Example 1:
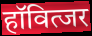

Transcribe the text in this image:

हॉवित्जर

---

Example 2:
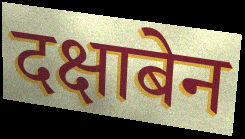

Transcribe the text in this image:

दक्षाबेन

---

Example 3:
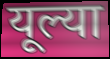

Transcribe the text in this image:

यूल्या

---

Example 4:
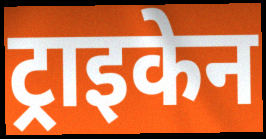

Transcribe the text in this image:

ट्राइकेन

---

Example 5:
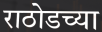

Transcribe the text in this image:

राठोडच्या